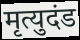
मृत्युदंड